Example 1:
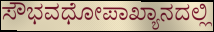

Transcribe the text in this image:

ಸೌಭವಧೋಪಾಖ್ಯಾನದಲ್ಲಿ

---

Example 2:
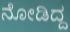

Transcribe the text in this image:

ನೋಡಿದ್ದ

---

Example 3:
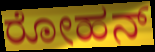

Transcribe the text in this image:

ರೋಹನ್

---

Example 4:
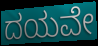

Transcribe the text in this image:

ದಯವೇ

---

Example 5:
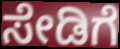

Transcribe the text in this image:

ಸೇಡಿಗೆ